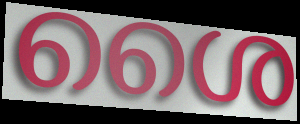
ശൈ